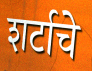
शर्टाचे